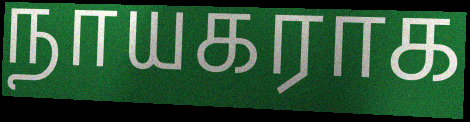
நாயகராக